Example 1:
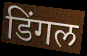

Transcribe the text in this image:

डिंगल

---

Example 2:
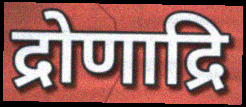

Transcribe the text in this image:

द्रोणाद्रि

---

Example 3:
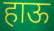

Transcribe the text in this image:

हाऊ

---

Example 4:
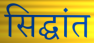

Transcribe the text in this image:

सिद्घांत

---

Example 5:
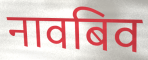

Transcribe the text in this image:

नावबिव